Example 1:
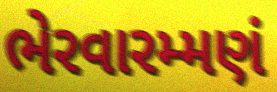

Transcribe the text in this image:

ભેરવારમ્મણં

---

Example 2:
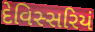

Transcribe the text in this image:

દેવિસ્સરિયં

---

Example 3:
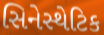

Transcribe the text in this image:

સિનેસ્થેટિક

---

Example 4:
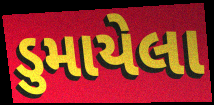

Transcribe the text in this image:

ડુમાયેલા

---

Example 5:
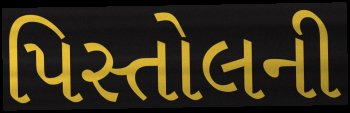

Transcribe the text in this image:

પિસ્તોલની